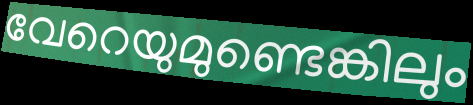
വേറെയുമുണ്ടെങ്കിലും